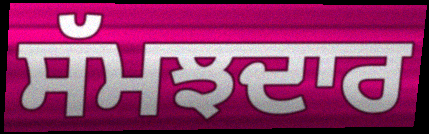
ਸੱਮਝਦਾਰ